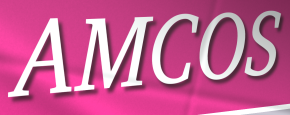
AMCOS